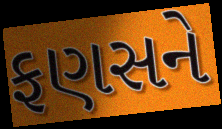
ફણસને